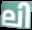
ലി